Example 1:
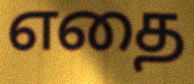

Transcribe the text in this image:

எதை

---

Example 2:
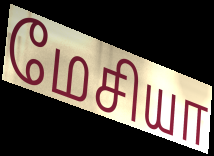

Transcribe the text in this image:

மேசியா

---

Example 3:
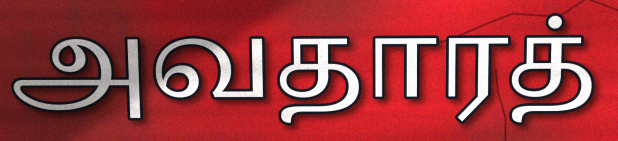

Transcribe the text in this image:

அவதாரத்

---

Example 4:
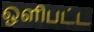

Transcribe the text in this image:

ஒளிபட்ட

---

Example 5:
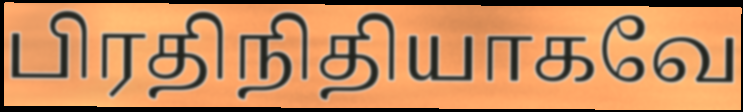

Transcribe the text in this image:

பிரதிநிதியாகவே